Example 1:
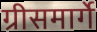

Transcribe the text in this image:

ग्रीसमार्गे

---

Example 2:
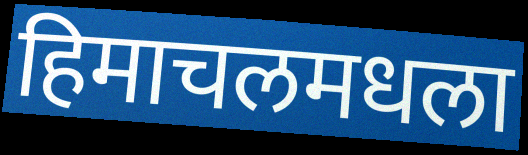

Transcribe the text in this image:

हिमाचलमधला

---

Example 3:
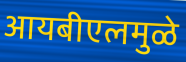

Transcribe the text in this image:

आयबीएलमुळे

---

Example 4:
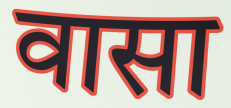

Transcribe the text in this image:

वासा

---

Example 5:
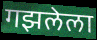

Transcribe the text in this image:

गझलेला